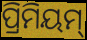
ପ୍ରିମିୟମ୍